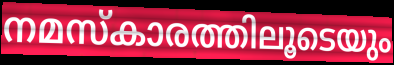
നമസ്കാരത്തിലൂടെയും